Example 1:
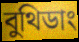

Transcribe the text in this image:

বুথিডাং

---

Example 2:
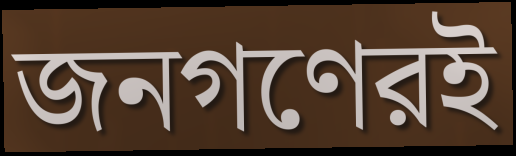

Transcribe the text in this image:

জনগণেরই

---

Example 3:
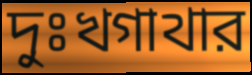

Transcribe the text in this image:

দুঃখগাথার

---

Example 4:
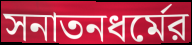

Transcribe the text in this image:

সনাতনধর্মের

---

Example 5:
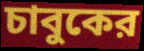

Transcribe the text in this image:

চাবুকের